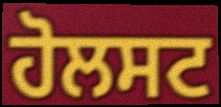
ਹੋਲਸਟ